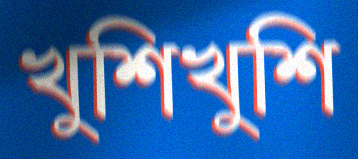
খুশিখুশি